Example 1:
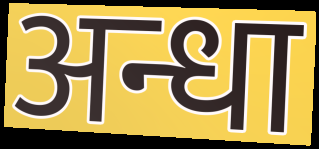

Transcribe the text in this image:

अन्धा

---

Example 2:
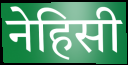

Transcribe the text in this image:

नेहिसी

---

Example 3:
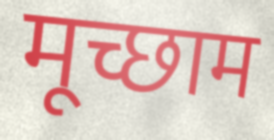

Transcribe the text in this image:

मूच्छाम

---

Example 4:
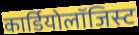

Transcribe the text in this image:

कार्डियोलॉजिस्ट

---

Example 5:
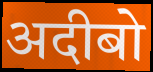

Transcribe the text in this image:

अदीबो